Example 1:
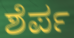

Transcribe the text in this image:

ಶೆರ್ಪ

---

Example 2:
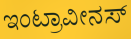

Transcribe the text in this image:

ಇಂಟ್ರಾವೀನಸ್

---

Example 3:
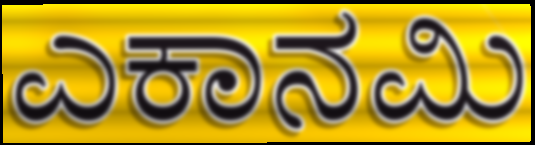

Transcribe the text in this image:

ಎಕಾನಮಿ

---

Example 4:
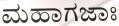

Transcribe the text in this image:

ಮಹಾಗಜಾಃ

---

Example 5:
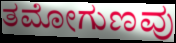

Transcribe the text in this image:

ತಮೋಗುಣವು